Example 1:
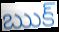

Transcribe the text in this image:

ఋక్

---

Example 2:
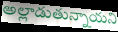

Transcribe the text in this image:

అల్లాడుతున్నాయని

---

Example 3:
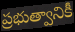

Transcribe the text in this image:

ప్రభుత్వానికీ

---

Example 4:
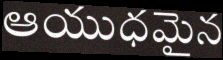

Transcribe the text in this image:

ఆయుధమైన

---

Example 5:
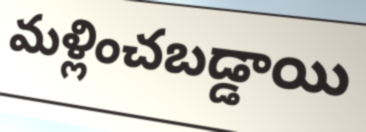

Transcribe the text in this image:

మళ్లించబడ్డాయి